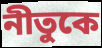
নীতুকে